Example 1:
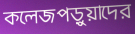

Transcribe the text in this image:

কলেজপড়ুয়াদের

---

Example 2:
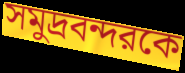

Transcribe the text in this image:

সমুদ্রবন্দরকে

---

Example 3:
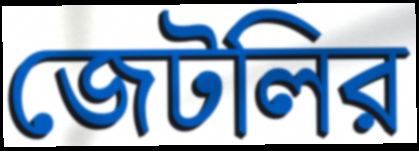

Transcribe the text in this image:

জেটলির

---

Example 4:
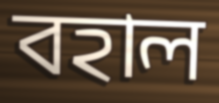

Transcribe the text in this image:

বহাল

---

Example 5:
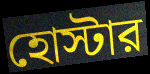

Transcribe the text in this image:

হোস্টার